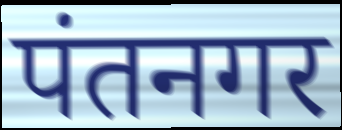
पंतनगर